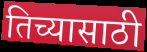
तिच्यासाठी